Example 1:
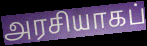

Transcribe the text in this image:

அரசியாகப்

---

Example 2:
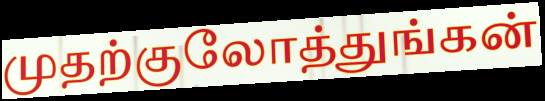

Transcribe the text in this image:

முதற்குலோத்துங்கன்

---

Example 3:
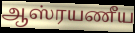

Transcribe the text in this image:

ஆஸ்ரயணீய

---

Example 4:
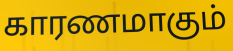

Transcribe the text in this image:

காரணமாகும்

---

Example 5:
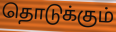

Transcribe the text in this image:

தொடுக்கும்